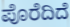
ಪೊರೆದಿದೆ